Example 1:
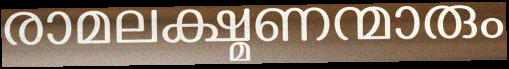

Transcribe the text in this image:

രാമലക്ഷ്മണന്മാരും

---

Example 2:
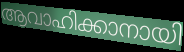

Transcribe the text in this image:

ആവാഹിക്കാനായി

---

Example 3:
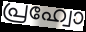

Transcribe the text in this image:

പ്രഹ്വോ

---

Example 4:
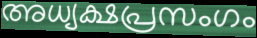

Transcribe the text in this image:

അധ്യക്ഷപ്രസംഗം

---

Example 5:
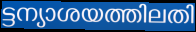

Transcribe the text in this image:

ട്ടന്യാശയത്തിലതി